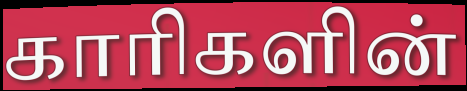
காரிகளின்